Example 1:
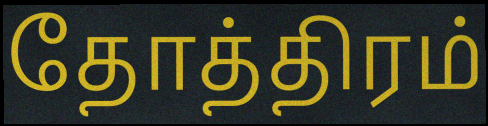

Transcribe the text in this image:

தோத்திரம்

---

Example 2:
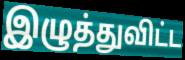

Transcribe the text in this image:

இழுத்துவிட்ட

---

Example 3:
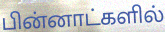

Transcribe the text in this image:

பின்னாட்களில்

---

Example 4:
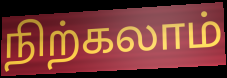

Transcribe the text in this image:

நிற்கலாம்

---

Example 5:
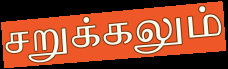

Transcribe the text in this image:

சறுக்கலும்